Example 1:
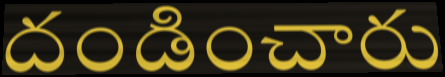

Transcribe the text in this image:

దండించారు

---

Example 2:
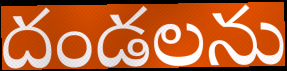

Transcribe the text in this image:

దండలను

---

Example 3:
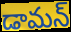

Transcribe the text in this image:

డామన్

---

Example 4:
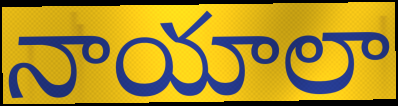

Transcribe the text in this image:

నాయాలా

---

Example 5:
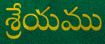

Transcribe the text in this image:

శ్రేయము